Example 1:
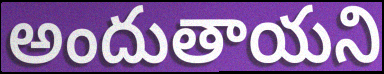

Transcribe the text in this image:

అందుతాయని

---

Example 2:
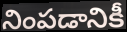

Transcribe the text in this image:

నింపడానికీ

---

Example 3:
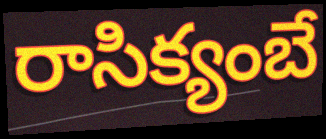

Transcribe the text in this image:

రాసిక్యంబే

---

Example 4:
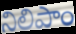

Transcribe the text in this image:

నిలిపాం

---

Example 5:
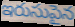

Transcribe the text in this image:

ఇరుసుపైన